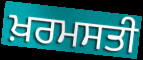
ਖ਼ਰਮਸਤੀ